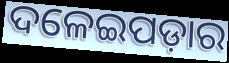
ଦଳେଇପଡ଼ାର